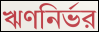
ঋণনির্ভর